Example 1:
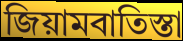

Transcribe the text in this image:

জিয়ামবাতিস্তা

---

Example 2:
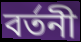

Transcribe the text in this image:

বর্তনী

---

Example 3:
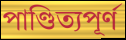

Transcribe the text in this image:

পাণ্ডিত্যপূর্ণ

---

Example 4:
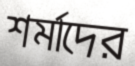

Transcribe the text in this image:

শর্মাদের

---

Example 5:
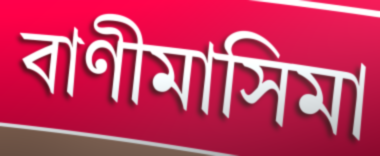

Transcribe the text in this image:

বাণীমাসিমা